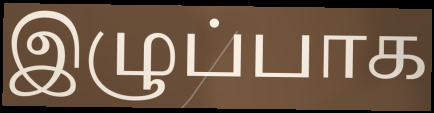
இழுப்பாக